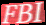
FBI